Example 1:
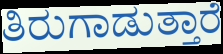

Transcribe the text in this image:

ತಿರುಗಾಡುತ್ತಾರೆ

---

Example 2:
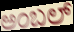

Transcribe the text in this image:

ಅಂಬಲ್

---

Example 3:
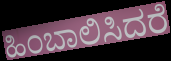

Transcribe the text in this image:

ಹಿಂಬಾಲಿಸಿದರೆ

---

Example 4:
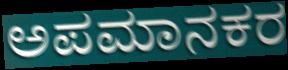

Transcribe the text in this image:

ಅಪಮಾನಕರ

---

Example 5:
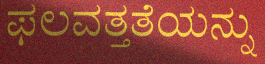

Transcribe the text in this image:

ಫಲವತ್ತತೆಯನ್ನು